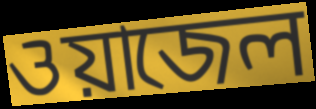
ওয়াজেল